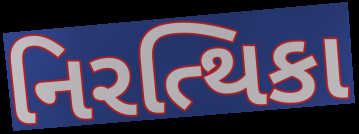
નિરત્થિકા